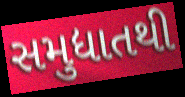
સમુદ્યાતથી